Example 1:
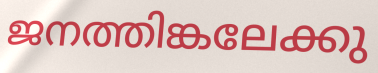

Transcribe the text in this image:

ജനത്തിങ്കലേക്കു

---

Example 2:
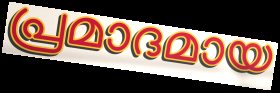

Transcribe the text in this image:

പ്രമാദമായ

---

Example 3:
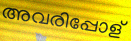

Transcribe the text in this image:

അവരിപ്പോള്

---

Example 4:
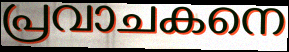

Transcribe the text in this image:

പ്രവാചകനെ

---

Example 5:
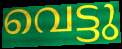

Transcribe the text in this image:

വെട്ടു